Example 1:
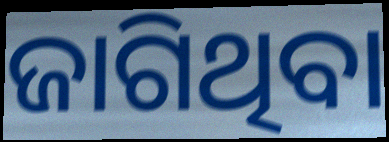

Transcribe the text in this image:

ଜାଗିଥିବା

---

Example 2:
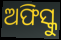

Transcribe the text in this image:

ଅଫିସ୍କୁ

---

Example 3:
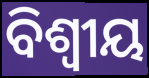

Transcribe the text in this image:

ବିଶ୍ଵୀୟ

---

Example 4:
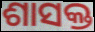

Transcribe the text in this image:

ଶାସକ୍ତ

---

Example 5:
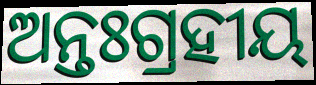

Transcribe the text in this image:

ଅନ୍ତଃଗ୍ରହୀୟ